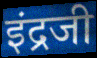
इंद्रजी